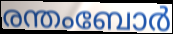
രന്തംബോർ